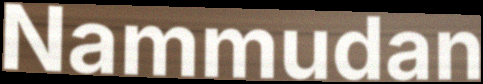
Nammudan